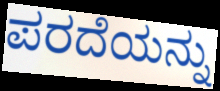
ಪರದೆಯನ್ನು